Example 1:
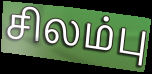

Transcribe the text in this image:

சிலம்பு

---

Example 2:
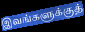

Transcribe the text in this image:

இவங்களுக்குத்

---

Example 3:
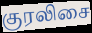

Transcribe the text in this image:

குரலிசை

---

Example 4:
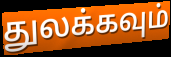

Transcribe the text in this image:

துலக்கவும்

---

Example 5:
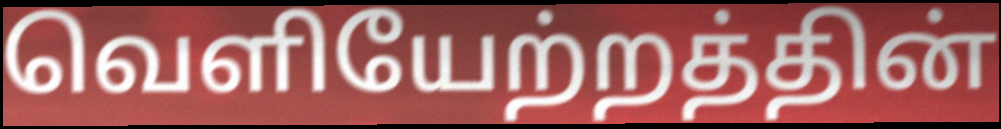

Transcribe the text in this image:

வெளியேற்றத்தின்